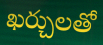
ఖర్చులతో